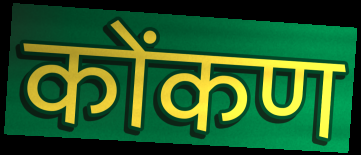
कोंकण